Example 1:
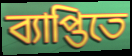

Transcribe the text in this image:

ব্যাপ্তিতে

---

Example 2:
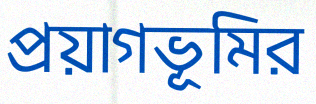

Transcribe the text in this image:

প্রয়াগভূমির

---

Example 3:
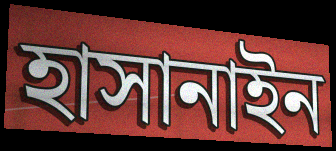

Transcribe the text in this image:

হাসানাইন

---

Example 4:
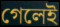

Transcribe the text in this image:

গেলেই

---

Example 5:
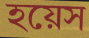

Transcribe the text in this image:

হয়েস